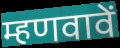
म्हणवावें